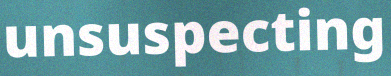
unsuspecting